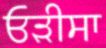
ਓੜੀਸਾ